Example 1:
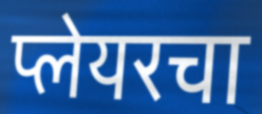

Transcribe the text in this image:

प्लेयरचा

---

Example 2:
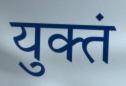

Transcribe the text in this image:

युक्तं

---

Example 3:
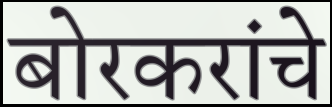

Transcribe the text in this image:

बोरकरांचे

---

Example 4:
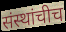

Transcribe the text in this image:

संस्थांचीच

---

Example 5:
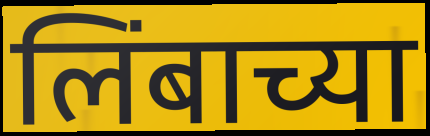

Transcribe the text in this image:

लिंबाच्या